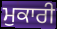
ਮੁਕਾਰੀ